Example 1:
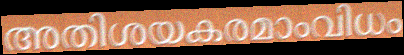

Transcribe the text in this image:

അതിശയകരമാംവിധം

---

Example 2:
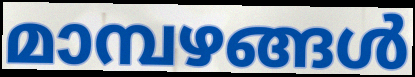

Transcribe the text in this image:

മാമ്പഴങ്ങൾ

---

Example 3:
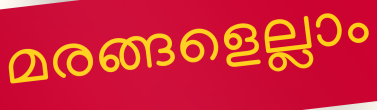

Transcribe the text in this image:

മരങ്ങളെല്ലാം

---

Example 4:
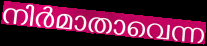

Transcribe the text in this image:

നിർമാതാവെന്ന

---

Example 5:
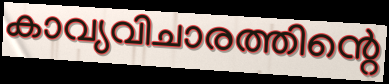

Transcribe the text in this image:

കാവ്യവിചാരത്തിന്റെ